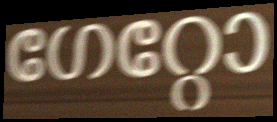
ഗേറ്റോ